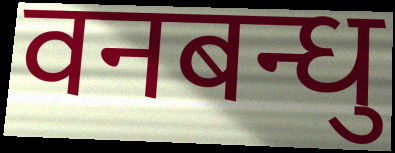
वनबन्धु